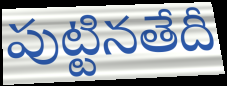
పుట్టినతేదీ